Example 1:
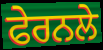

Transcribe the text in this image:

ਫੇਰਨਲੇ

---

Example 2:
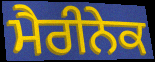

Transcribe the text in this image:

ਮੈਰੀਨੇਕ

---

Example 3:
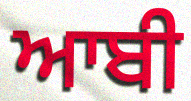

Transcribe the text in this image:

ਆਬੀ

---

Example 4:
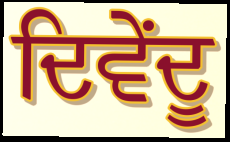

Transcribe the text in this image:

ਦਿਵੇਂਦੂ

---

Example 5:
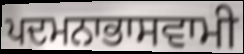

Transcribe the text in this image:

ਪਦਮਨਾਭਾਸਵਾਮੀ